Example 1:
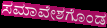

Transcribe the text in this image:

ಸಮಾವೇಶಗೊಂಡ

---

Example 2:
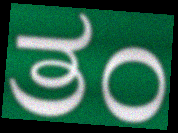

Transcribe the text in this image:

ತಂ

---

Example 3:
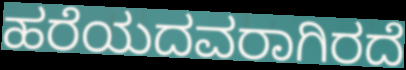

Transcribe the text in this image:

ಹರೆಯದವರಾಗಿರದೆ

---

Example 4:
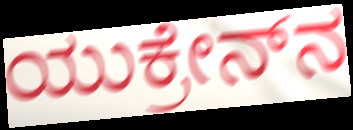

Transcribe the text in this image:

ಯುಕ್ರೇನ್‌ನ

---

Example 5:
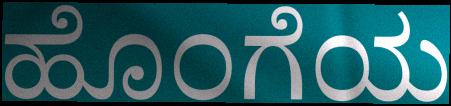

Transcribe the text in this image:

ಹೊಂಗೆಯ